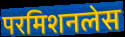
परमिशनलेस